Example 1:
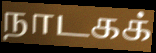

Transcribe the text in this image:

நாடகக்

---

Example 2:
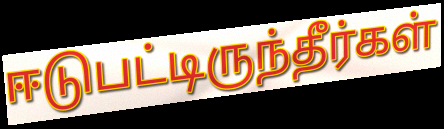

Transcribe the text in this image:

ஈடுபட்டிருந்தீர்கள்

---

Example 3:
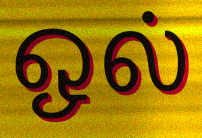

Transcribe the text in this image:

ஒல்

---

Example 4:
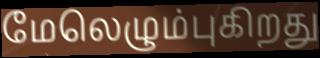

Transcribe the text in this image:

மேலெழும்புகிறது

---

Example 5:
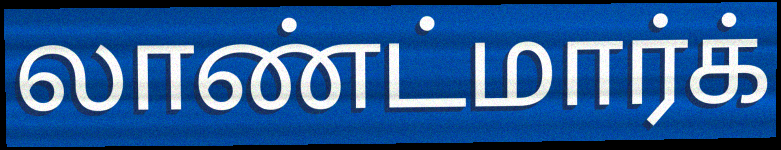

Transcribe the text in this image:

லாண்ட்மார்க்